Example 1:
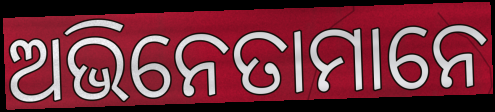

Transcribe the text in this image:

ଅଭିନେତାମାନେ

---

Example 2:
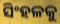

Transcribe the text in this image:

ସିଂହଳକୁ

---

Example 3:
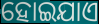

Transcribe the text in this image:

ହୋଇଯାଏ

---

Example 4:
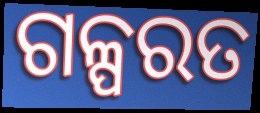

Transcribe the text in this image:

ଗଳ୍ପରତ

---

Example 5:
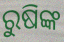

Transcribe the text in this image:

ରୁଷିଙ୍କ